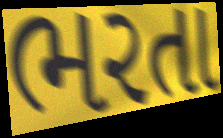
ભરતા